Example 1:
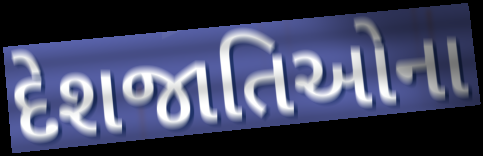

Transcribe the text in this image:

દેશજાતિઓના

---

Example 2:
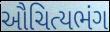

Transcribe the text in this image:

ઔચિત્યભંગ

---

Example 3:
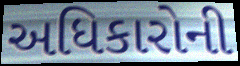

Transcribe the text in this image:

અધિકારોની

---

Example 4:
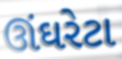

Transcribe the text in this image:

ઊંઘરેટા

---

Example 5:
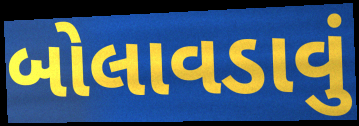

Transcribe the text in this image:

બોલાવડાવું